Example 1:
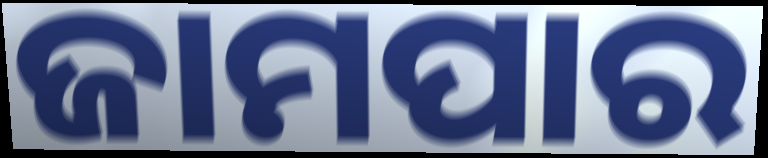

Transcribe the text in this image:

ଜାମପାର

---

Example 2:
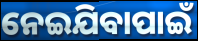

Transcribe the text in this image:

ନେଇଯିବାପାଇଁ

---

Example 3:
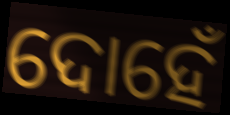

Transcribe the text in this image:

ଦୋହେଁ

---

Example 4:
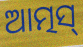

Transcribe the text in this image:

ଆତ୍ମସ୍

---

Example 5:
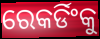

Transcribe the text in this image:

ରେକର୍ଡିଂକୁ